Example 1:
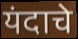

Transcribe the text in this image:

यंदाचे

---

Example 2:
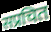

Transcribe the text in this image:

सप्रचित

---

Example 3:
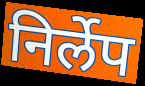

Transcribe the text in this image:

निर्लेप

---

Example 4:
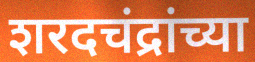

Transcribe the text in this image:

शरदचंद्रांच्या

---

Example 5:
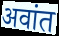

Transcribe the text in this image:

अवांत